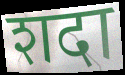
शदा